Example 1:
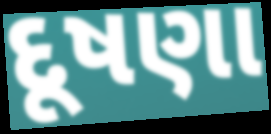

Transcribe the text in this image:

દૂષણા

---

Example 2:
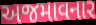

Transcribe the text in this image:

અજમાવનાર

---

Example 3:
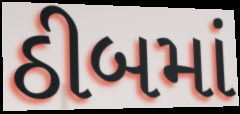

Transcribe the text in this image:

ઠીબમાં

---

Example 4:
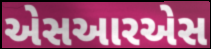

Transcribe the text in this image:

એસઆરએસ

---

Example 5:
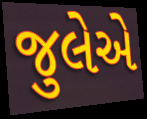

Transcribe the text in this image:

જુલેએ